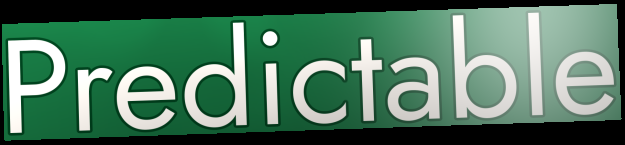
Predictable